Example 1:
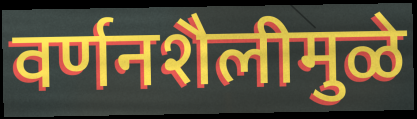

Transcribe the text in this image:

वर्णनशैलीमुळे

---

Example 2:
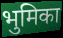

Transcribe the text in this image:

भुमिका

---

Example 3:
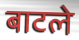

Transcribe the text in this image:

बाटले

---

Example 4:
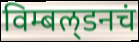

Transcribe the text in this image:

विम्बल्डनचं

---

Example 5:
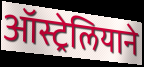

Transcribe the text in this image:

ऑस्ट्रेलियाने